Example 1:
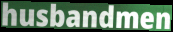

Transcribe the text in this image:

husbandmen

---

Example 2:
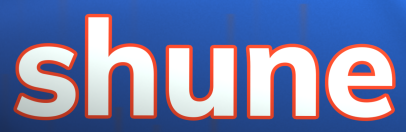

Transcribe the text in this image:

shune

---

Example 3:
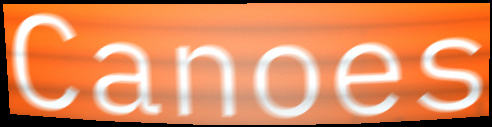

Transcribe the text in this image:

Canoes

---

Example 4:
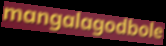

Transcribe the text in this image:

mangalagodbole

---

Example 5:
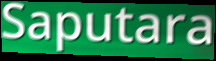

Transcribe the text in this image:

Saputara